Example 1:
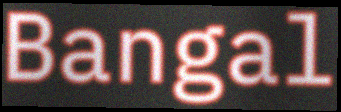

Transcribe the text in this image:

Bangal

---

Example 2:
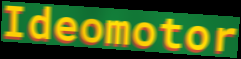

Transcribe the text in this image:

Ideomotor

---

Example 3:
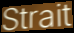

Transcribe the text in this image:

Strait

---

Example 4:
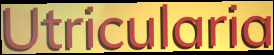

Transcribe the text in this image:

Utricularia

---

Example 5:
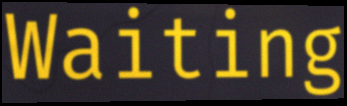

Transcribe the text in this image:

Waiting